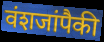
वंशजांपैकी